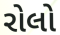
રોલો